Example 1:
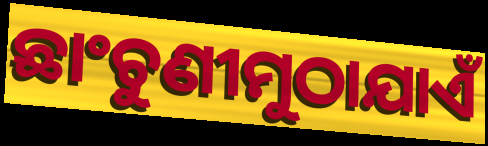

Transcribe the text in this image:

ଛାଂଚୁଣୀମୁଠାଯାଏଁ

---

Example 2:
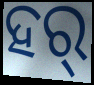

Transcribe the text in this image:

ହର୍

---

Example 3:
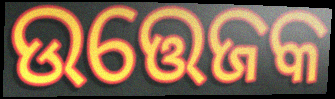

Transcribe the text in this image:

ଉତ୍ତେଜକ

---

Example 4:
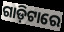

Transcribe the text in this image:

ଗାଡ଼ିଟାରେ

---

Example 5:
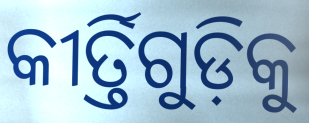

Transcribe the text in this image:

କୀର୍ତ୍ତିଗୁଡ଼ିକୁ